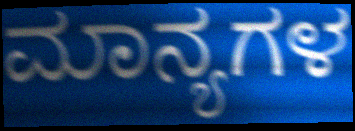
ಮಾನ್ಯಗಳ